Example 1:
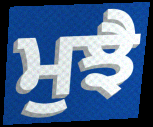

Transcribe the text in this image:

ਮੁਝੈ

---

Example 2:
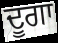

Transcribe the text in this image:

ਦੂਗਾ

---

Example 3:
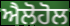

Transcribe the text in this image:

ਐਲੋਹੋਲ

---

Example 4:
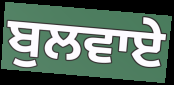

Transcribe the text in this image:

ਬੁਲਵਾਏ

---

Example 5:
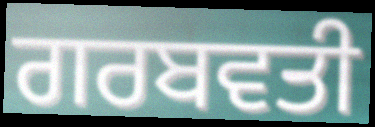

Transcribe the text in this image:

ਗਰਬਵਤੀ